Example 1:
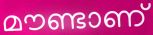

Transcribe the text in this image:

മൗണ്ടാണ്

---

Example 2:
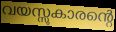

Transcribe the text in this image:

വയസ്സുകാരന്റെ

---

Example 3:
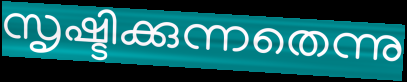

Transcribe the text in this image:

സൃഷ്ടിക്കുന്നതെന്നു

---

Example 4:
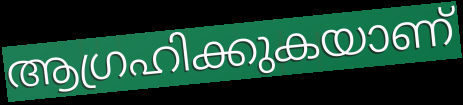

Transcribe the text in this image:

ആഗ്രഹിക്കുകയാണ്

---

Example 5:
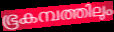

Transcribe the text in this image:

ഭൂകമ്പത്തിലും